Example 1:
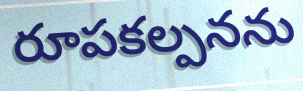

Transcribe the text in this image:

రూపకల్పనను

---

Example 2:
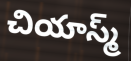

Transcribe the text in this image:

చియాస్మ్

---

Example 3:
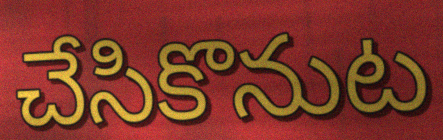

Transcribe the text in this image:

చేసికొనుట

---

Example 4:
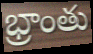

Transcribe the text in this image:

భ్రాంతు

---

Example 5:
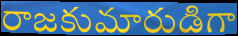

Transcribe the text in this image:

రాజకుమారుడిగా